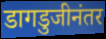
डागडुजीनंतर